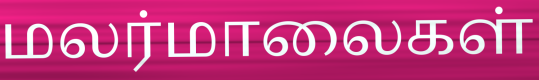
மலர்மாலைகள்